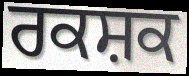
ਰਕਸ਼ਕ